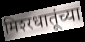
मिश्रधातूंच्या